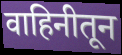
वाहिनीतून